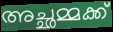
അച്ഛമ്മക്ക്